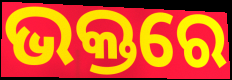
ଭକ୍ତରେ